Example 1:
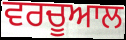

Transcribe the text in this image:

ਵਰਚੂਆਲ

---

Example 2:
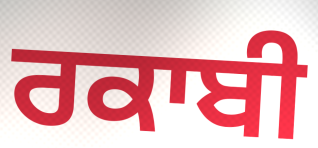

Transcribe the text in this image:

ਰਕਾਬੀ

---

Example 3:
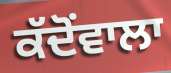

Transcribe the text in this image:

ਕੱਦੋਂਵਾਲਾ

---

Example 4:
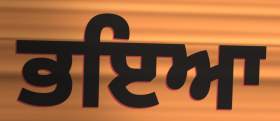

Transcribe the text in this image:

ਭਇਆ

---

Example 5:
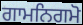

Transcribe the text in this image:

ਗਾਮਨਿਗਮੋ